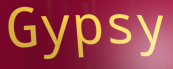
Gypsy